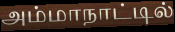
அம்மாநாட்டில்